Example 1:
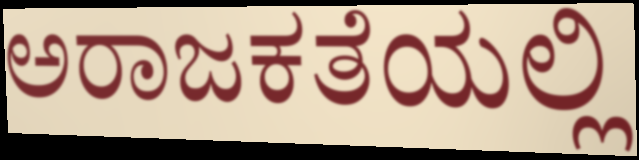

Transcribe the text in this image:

ಅರಾಜಕತೆಯಲ್ಲಿ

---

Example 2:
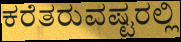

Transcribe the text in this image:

ಕರೆತರುವಷ್ಟರಲ್ಲಿ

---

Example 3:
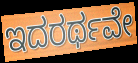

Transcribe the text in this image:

ಇದರರ್ಥವೇ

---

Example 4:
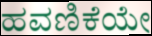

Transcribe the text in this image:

ಹವಣಿಕೆಯೇ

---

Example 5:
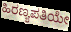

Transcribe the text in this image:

ಹಿರಣ್ಯಪತಿಯೇ